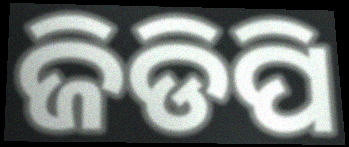
ଜିଡିପି